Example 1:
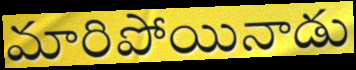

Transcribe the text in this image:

మారిపోయినాడు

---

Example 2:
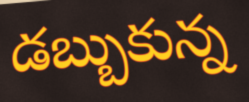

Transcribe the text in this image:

డబ్బుకున్న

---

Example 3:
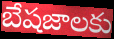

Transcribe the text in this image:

బేషజాలకు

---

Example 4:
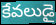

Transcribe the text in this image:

కేవలుడై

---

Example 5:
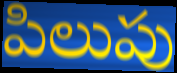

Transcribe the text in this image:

పిలుపు